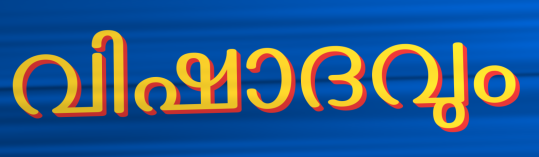
വിഷാദവും